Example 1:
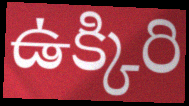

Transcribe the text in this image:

ఉక్కిరి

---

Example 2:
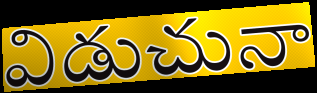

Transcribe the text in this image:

విడుచునా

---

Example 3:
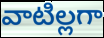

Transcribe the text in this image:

వాటిల్లగా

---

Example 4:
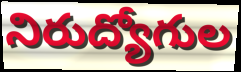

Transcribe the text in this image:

నిరుద్యోగుల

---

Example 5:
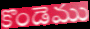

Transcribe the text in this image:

కొండెము